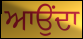
ਆਉੰਦਾ